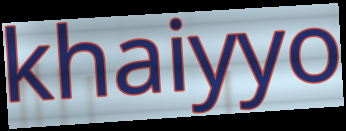
khaiyyo